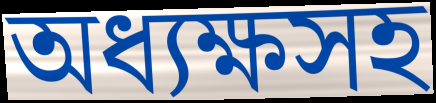
অধ্যক্ষসহ